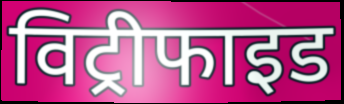
विट्रीफाइड